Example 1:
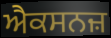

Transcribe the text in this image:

ਐਕਸਨਜ਼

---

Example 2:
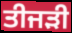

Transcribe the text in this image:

ਤੀਜੜੀ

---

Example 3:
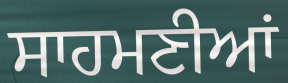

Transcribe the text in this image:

ਸਾਹਮਣੀਆਂ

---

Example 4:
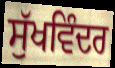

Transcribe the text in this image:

ਸੁੱਖਵਿੰਦਰ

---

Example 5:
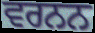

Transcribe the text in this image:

ਵਰਨਨ